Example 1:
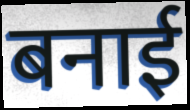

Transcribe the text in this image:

बनाई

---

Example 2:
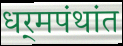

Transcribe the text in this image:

धर्मपंथांत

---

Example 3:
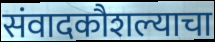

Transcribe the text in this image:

संवादकौशल्याचा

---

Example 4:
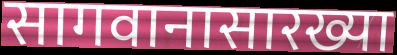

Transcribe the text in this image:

सागवानासारख्या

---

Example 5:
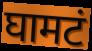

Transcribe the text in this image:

घामटं